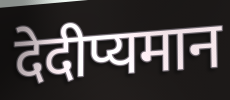
देदीप्यमान